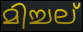
മിച്ചല്